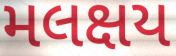
મલક્ષય